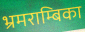
भ्रमराम्बिका